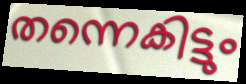
തന്നെകിട്ടും